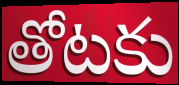
తోటకు